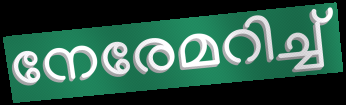
നേരേമറിച്ച്